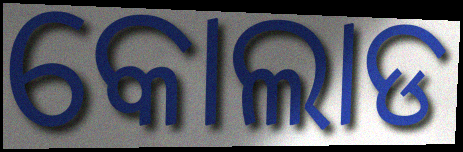
କୋଲାଡ